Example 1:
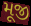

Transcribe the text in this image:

મૂજી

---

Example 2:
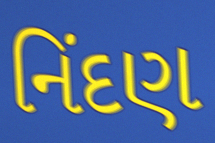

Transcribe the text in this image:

નિંદણ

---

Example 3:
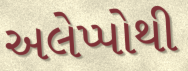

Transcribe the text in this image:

અલેપ્પોથી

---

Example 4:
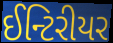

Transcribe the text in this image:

ઈન્ટિરીયર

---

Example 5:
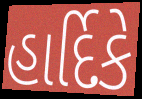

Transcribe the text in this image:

હાર્દિકે